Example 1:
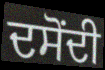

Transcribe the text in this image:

ਦਸੋਂਦੀ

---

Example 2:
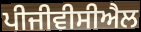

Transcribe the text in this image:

ਪੀਜੀਵੀਸੀਐਲ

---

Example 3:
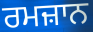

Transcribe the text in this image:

ਰਮਜ਼ਾਨ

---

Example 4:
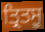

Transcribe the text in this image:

ਤ੍ਰਿਤਸੂ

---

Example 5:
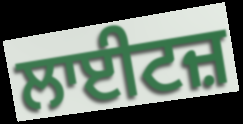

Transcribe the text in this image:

ਲਾਈਟਜ਼